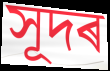
সূদৰ